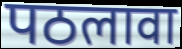
पठलावा